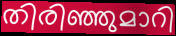
തിരിഞ്ഞുമാറി